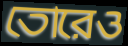
তোরেও